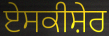
ਏਸਕੀਸ਼ੇਰ